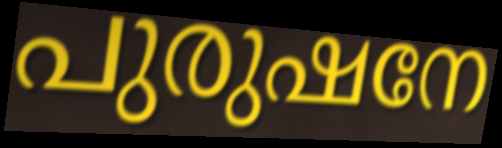
പുരുഷനേ